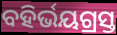
ବହିର୍ଭୟଗ୍ରସ୍ତ